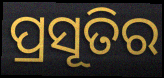
ପ୍ରସୂତିର